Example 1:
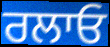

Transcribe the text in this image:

ਰਲਾਓ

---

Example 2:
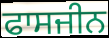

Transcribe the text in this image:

ਫਾਸਜੀਨ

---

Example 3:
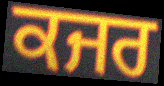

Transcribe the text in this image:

ਕਜਰ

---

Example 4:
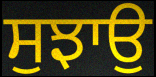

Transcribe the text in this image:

ਸੁਝਾਉ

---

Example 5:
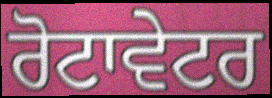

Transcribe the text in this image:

ਰੋਟਾਵੇਟਰ